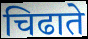
चिढाते